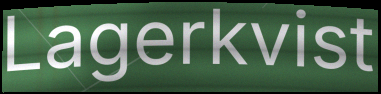
Lagerkvist